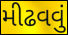
મીઢવવું